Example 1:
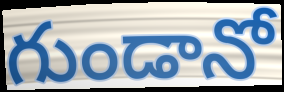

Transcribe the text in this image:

గుండానో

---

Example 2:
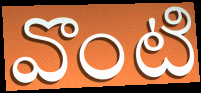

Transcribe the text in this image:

వొంటి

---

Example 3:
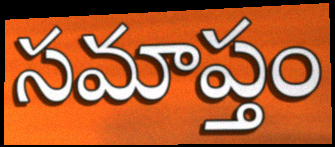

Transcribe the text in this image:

సమాప్తం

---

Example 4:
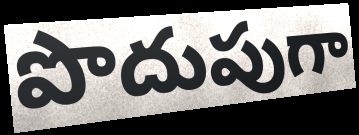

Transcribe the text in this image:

పొదుపుగా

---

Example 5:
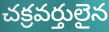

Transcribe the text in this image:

చక్రవర్తులైన